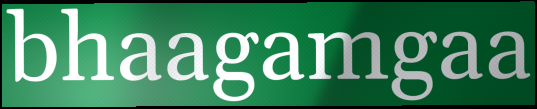
bhaagamgaa